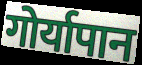
गोर्यापान